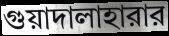
গুয়াদালাহারার